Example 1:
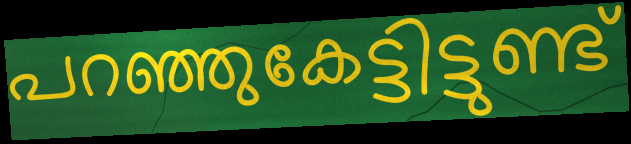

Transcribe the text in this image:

പറഞ്ഞുകേട്ടിട്ടുണ്ട്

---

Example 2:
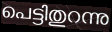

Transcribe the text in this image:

പെട്ടിതുറന്നു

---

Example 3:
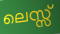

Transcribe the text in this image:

ലെസ്സ്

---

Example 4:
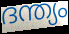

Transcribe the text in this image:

ദന്ത്യം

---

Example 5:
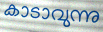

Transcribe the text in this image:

കാടാവുന്നു